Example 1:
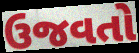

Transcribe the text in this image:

ઉજવતો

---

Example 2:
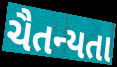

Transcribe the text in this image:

ચૈતન્યતા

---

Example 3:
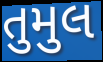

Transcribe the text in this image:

તુમુલ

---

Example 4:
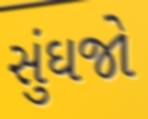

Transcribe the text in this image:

સુંઘજો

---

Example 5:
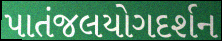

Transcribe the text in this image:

પાતંજલયોગદર્શન